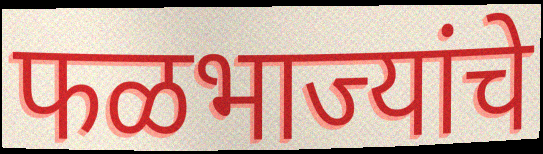
फळभाज्यांचे